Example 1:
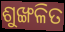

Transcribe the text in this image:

ଶୁଙ୍ଖଳିତ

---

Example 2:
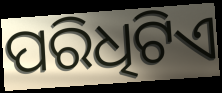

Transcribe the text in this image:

ପରିଧିଟିଏ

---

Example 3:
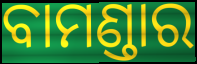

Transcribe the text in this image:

ବାମଣ୍ଡାର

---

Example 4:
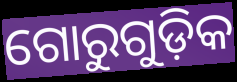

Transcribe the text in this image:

ଗୋରୁଗୁଡ଼ିକ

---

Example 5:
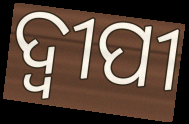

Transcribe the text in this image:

ଦ୍ୱୀପୀ